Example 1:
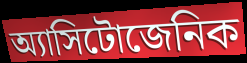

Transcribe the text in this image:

অ্যাসিটোজেনিক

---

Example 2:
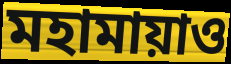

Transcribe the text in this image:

মহামায়াও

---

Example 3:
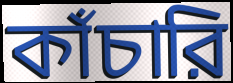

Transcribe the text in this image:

কাঁচারি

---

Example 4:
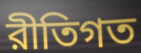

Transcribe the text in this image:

রীতিগত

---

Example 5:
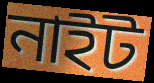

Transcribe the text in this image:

নাইট